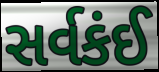
સર્વકંઈ